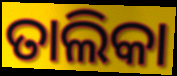
ତାଲିକା